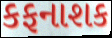
કફનાશક